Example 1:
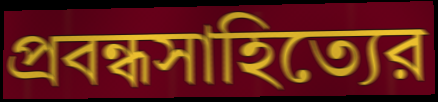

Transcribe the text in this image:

প্রবন্ধসাহিত্যের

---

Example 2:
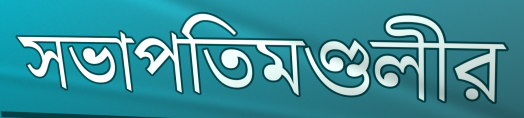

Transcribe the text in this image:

সভাপতিমণ্ডলীর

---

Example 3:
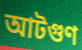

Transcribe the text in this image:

আটগুণ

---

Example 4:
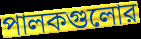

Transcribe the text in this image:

পালকগুলোর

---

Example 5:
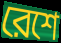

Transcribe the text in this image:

রেশে